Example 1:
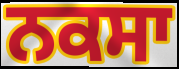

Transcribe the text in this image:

ਨਕਸਾ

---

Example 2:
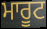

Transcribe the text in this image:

ਮਾਰੂਟ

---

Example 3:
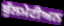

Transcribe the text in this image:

ਬੁੱਲਮੇਟੀਅਨ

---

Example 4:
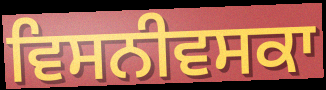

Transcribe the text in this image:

ਵਿਸਨੀਵਸਕਾ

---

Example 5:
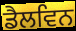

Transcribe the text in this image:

ਡੈਲਵਿਨ